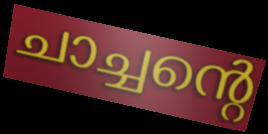
ചാച്ചന്റെ